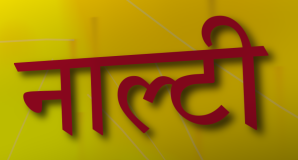
नाल्टी